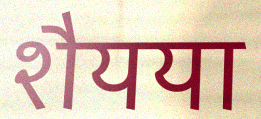
शैयया